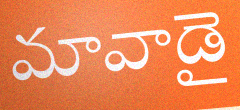
మావాడై